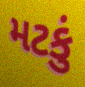
મટકું